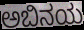
ಅಬಿನಯ